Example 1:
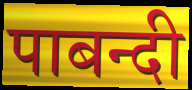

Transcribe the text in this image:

पाबन्दी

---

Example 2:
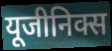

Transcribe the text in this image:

यूजीनिक्स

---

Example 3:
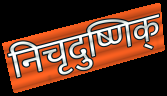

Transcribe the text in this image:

निचृदुष्णिक्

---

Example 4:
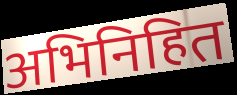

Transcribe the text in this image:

अभिनिहित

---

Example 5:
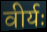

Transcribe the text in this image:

वीर्यः